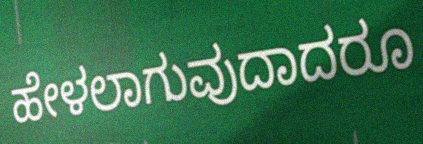
ಹೇಳಲಾಗುವುದಾದರೂ